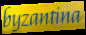
byzantina